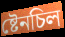
ষ্টেনচিল